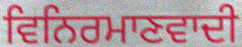
ਵਿਨਿਰਮਾਣਵਾਦੀ